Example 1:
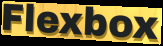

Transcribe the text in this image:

Flexbox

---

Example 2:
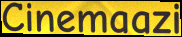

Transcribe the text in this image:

Cinemaazi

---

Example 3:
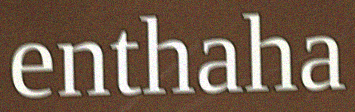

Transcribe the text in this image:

enthaha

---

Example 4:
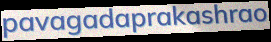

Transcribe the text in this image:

pavagadaprakashrao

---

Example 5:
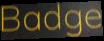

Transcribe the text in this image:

Badge